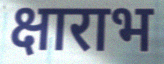
क्षाराभ